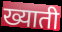
ख्याती